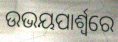
ଉଭୟପାର୍ଶ୍ବରେ